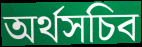
অর্থসচিব